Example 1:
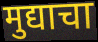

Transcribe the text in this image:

मुद्याचा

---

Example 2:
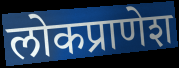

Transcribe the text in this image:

लोकप्राणेश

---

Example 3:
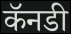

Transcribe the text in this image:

कॅनडी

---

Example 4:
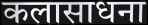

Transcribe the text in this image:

कलासाधना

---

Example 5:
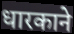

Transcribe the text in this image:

धारकाने